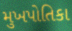
મુખપોતિકા